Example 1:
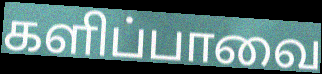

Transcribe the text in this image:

களிப்பாவை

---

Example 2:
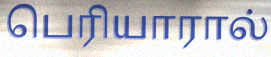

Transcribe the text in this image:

பெரியாரால்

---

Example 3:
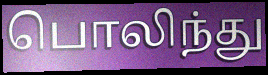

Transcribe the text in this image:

பொலிந்து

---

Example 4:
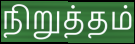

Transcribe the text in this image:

நிறுத்தம்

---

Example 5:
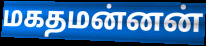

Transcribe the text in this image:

மகதமன்னன்